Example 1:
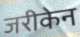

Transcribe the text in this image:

जरीकेन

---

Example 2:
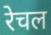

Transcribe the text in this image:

रेचल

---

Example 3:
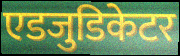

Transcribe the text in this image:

एडजुडिकेटर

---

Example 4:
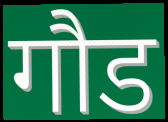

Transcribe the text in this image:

गौड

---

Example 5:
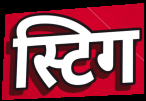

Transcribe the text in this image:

स्टिग